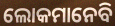
ଲୋକମାନେବି